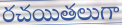
రచయితలుగా